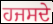
ਹਜਸਦੇ